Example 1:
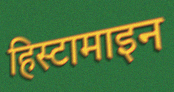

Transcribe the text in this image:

हिस्टामाइन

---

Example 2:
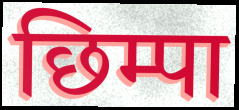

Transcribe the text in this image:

छिम्पा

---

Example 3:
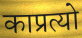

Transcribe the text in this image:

काप्रत्यो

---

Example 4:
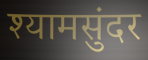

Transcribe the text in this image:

श्यामसुंदर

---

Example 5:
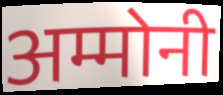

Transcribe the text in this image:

अम्मोनी